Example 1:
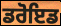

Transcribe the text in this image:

ਡਰੋਇਡ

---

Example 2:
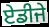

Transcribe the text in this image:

ਏਡੀਜੇ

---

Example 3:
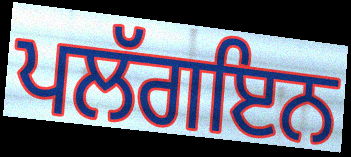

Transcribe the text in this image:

ਪਲੱਗਇਨ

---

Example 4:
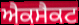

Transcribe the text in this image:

ਐਕਸੈਕਟ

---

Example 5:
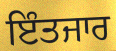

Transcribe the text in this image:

ਇੰਤਜਾਰ